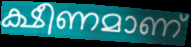
ക്ഷീണമാണ്